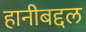
हानीबद्दल